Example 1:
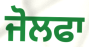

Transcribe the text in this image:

ਜੋਲਫਾ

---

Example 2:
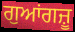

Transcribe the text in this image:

ਗੁਆਂਗਜ਼ੂ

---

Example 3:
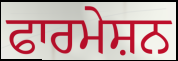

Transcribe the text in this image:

ਫਾਰਮੇਸ਼ਨ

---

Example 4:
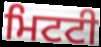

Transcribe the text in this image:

ਮਿਟਟੀ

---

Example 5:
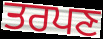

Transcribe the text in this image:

ਤਰਪਣ